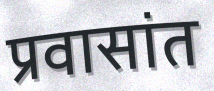
प्रवासांत